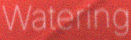
Watering